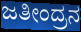
ಜತೀಂದ್ರನ